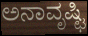
ಅನಾವೃಷ್ಟಿ